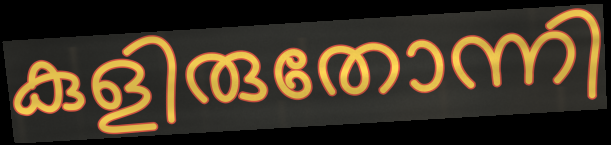
കുളിരുതോന്നി